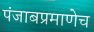
पंजाबप्रमाणेच